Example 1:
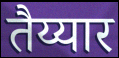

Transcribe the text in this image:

तैय्यार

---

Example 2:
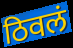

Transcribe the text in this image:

ठिवलं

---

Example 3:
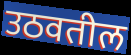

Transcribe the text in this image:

उठवतील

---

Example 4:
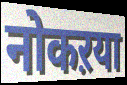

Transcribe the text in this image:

नोकऱया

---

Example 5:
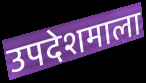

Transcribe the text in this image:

उपदेशमाला